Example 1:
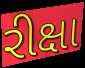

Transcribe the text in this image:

રીક્ષા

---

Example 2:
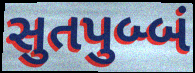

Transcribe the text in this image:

સુતપુબ્બં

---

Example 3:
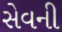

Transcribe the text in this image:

સેવની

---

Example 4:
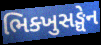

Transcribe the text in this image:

ભિક્ખુસઙ્ઘેન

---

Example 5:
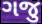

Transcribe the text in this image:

ગજુ